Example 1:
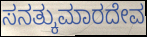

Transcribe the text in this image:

ಸನತ್ಕುಮಾರದೇವ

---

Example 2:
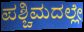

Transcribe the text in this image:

ಪಶ್ಚಿಮದಲ್ಲೇ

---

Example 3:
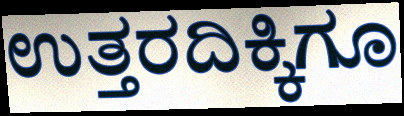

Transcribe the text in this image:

ಉತ್ತರದಿಕ್ಕಿಗೂ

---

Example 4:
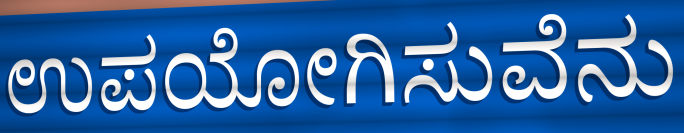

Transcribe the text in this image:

ಉಪಯೋಗಿಸುವೆನು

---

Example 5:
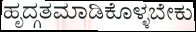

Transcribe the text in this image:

ಹೃದ್ಗತಮಾಡಿಕೊಳ್ಳಬೇಕು